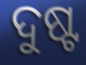
ଦୁଷ୍ଟ